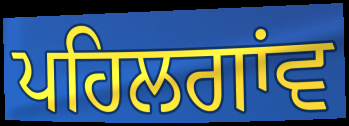
ਪਹਿਲਗਾਂਵ